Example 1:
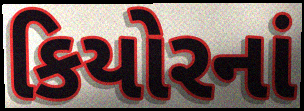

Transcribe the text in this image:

કિયોરનાં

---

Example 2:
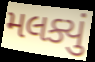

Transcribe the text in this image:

મલક્યું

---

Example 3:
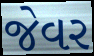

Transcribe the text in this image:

જેવર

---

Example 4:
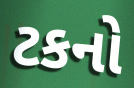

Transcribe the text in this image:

ટકનો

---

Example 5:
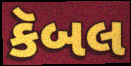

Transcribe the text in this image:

કૅબલ